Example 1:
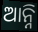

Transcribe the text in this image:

ଆନ୍ନି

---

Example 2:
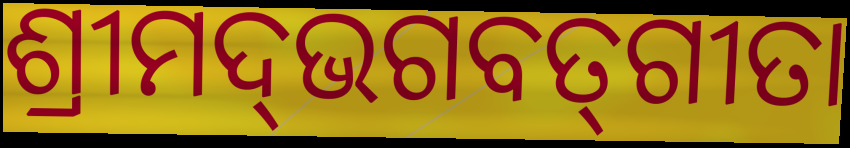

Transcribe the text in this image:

ଶ୍ରୀମଦ୍‌ଭଗବତ୍‌ଗୀତା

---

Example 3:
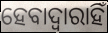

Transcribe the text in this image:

ହେବାଦ୍ଵାରାହିଁ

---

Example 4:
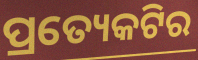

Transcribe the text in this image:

ପ୍ରତ୍ୟେକଟିର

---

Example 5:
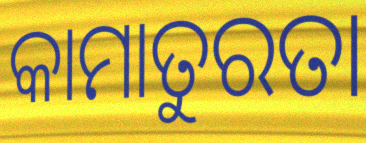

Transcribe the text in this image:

କାମାତୁରତା